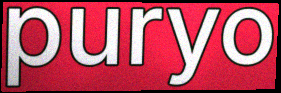
puryo